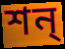
শন্